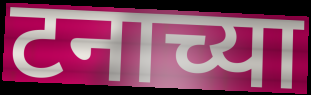
टनाच्या